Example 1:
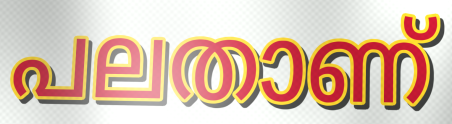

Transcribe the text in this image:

പലതാണ്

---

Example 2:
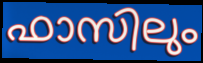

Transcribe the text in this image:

ഫാസിലും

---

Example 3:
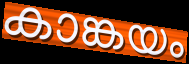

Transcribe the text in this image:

കാങ്കയം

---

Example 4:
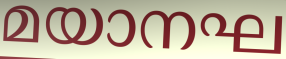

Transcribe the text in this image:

മയാനഘ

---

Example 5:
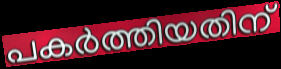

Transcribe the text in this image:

പകർത്തിയതിന്